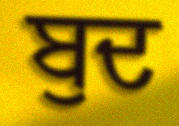
ਬੁਦ